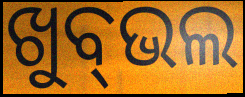
ଖୁବ୍‌ଭଲ